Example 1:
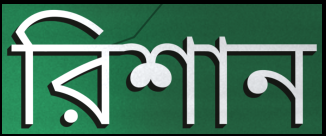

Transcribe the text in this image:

রিশান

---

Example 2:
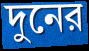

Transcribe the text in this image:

দুনের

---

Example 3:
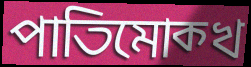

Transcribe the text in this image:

পাতিমোক্খ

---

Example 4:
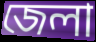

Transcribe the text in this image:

জেলা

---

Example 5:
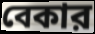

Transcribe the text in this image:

বেকার